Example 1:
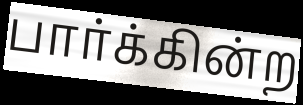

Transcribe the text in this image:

பார்க்கின்ற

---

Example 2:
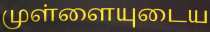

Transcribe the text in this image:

முள்ளையுடைய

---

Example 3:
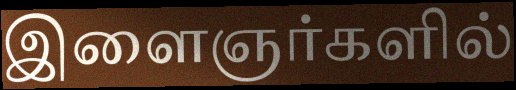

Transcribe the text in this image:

இளைஞர்களில்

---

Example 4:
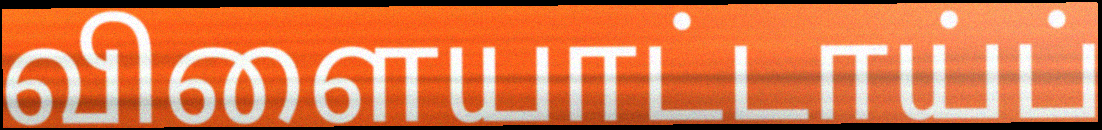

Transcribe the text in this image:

விளையாட்டாய்ப்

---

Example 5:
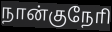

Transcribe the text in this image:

நான்குநேரி